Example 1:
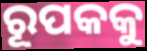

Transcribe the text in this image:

ରୂପକକୁ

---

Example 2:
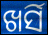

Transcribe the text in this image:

ଖର୍ସି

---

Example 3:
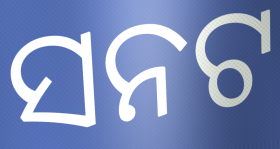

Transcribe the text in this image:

ସନଟ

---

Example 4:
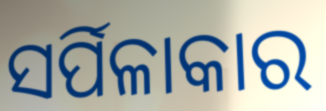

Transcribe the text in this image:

ସର୍ପିଳାକାର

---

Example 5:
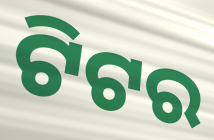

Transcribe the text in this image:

ଟିଟର